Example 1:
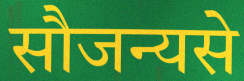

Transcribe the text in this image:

सौजन्यसे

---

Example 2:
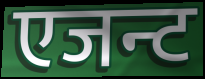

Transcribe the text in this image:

एजन्ट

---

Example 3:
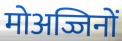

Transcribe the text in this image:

मोअज्जिनों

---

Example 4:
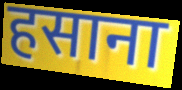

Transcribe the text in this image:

हसाना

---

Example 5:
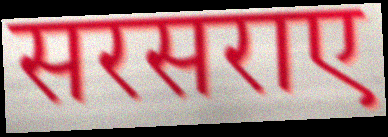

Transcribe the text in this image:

सरसराए